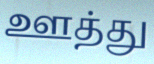
ஊத்து